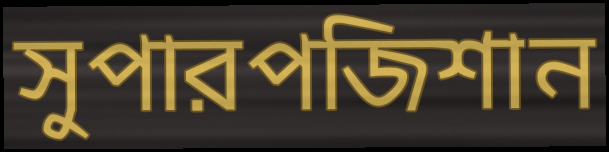
সুপারপজিশান